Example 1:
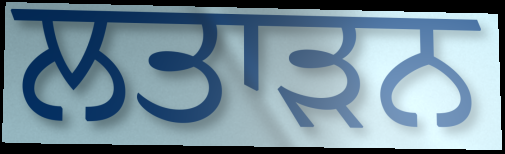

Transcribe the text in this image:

ਲਤਾੜਨ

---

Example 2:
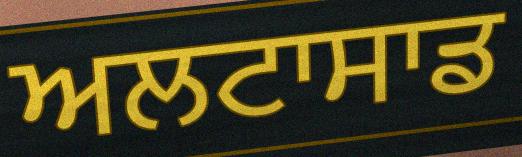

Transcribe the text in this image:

ਅਲਟਾਸਾਡ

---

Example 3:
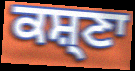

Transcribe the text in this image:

ਕਸ਼੍ਣਾ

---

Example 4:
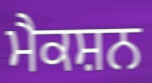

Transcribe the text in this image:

ਮੈਕਸ਼ਨ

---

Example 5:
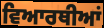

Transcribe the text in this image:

ਵਿਆਰਥੀਆਂ